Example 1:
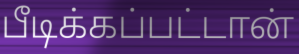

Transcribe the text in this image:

பீடிக்கப்பட்டான்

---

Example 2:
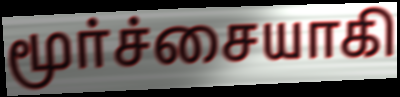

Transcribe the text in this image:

மூர்ச்சையாகி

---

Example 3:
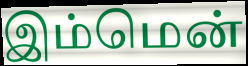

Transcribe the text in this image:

இம்மென்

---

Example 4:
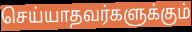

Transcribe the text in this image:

செய்யாதவர்களுக்கும்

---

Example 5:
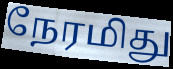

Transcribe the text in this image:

நேரமிது